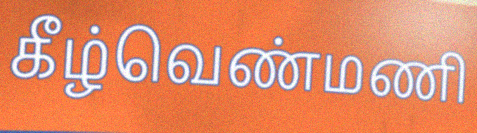
கீழ்வெண்மணி